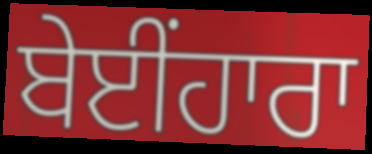
ਬੇਈਂਹਾਰਾ